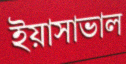
ইয়াসাভাল